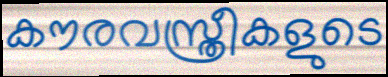
കൗരവസ്ത്രീകളുടെ